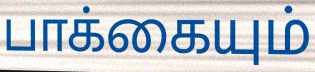
பாக்கையும்